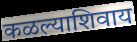
कळल्याशिवाय